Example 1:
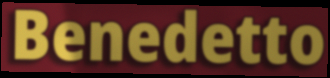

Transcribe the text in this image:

Benedetto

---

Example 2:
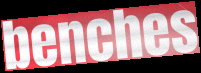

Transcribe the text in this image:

benches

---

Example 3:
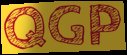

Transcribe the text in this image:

QGP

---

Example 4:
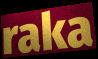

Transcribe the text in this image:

raka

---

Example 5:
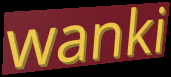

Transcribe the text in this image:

wanki